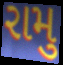
રામુ